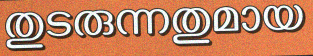
തുടരുന്നതുമായ